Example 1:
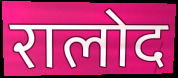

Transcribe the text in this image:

रालोद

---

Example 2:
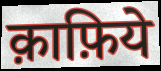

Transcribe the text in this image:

क़ाफ़िये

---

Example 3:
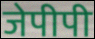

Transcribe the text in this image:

जेपीपी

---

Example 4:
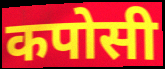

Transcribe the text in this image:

कपोसी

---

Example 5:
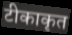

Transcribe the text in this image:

टीकाकृत